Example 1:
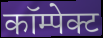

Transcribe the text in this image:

कॉम्पेक्ट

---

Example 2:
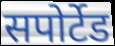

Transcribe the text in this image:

सपोर्टेड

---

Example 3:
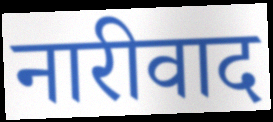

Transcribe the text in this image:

नारीवाद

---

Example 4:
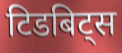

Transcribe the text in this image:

टिडबिट्स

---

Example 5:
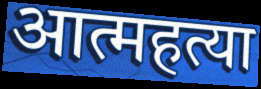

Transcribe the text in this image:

आत्महत्या